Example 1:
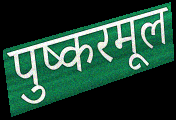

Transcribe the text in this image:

पुष्करमूल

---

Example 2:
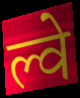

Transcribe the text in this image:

ल्वे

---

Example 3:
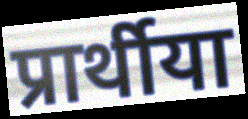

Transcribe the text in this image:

प्रार्थीया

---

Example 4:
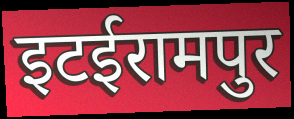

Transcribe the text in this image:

इटईरामपुर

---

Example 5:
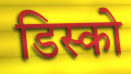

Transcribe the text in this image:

डिस्को